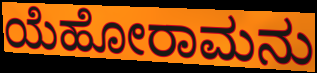
ಯೆಹೋರಾಮನು